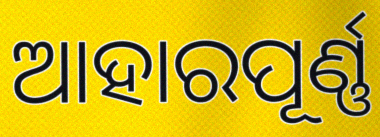
ଆହାରପୂର୍ଣ୍ଣ